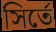
সির্তে